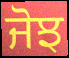
ਜੋਝ